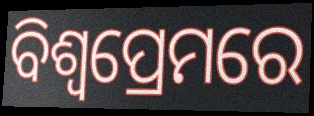
ବିଶ୍ୱପ୍ରେମରେ